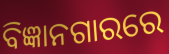
ବିଜ୍ଞାନଗାରରେ